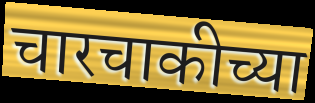
चारचाकीच्या